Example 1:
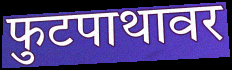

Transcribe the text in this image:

फुटपाथावर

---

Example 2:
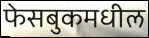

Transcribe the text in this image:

फेसबुकमधील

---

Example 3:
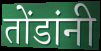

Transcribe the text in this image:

तोंडांनी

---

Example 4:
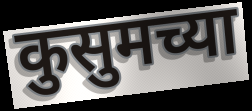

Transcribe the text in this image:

कुसुमच्या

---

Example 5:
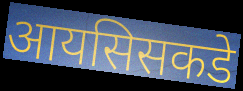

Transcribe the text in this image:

आयसिसकडे